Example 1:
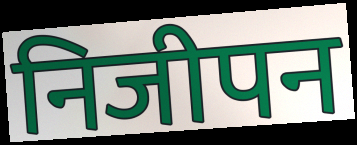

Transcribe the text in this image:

निजीपन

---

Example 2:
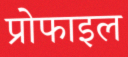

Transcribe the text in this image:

प्रोफाइल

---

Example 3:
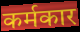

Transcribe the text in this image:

कर्मकार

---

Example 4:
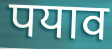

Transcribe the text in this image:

पयाव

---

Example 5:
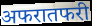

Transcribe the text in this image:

अफरातफरी